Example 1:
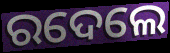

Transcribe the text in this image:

ରଦେଲେ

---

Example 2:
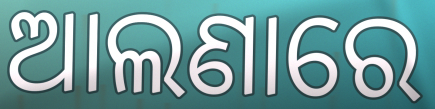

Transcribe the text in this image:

ଆଲଣାରେ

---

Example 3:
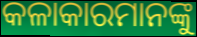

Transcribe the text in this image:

କଳାକାରମାନଙ୍କୁ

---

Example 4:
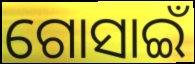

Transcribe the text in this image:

ଗୋସାଇଁ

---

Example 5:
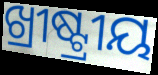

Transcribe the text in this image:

ଖ୍ରୀଷ୍ଟ୍ରୀୟ